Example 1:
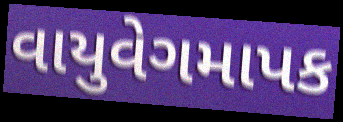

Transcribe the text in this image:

વાયુવેગમાપક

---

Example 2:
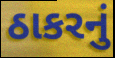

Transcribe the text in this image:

ઠાકરનું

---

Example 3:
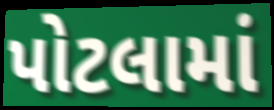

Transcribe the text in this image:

પોટલામાં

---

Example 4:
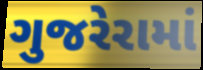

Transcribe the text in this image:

ગુજરેરામાં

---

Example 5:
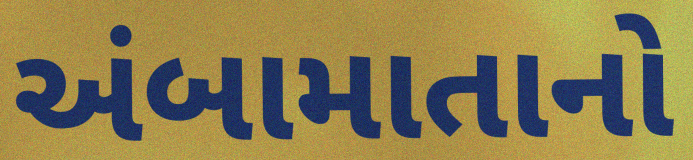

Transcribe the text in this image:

અંબામાતાનો